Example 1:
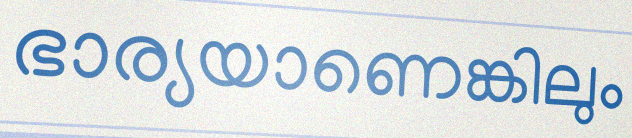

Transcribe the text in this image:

ഭാര്യയാണെങ്കിലും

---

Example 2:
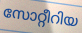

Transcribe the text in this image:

സോറ്റീറിയ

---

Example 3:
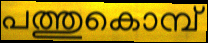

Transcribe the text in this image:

പത്തുകൊമ്പ്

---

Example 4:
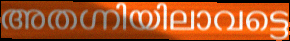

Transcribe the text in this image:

അതഗ്നിയിലാവട്ടെ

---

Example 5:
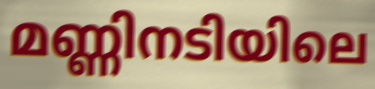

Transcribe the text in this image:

മണ്ണിനടിയിലെ